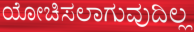
ಯೋಚಿಸಲಾಗುವುದಿಲ್ಲ